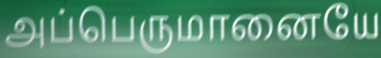
அப்பெருமானையே